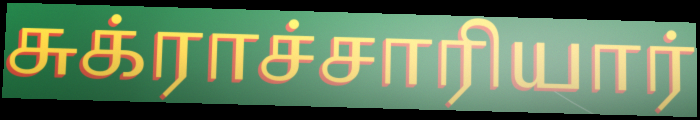
சுக்ராச்சாரியார்